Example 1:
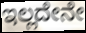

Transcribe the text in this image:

ಇಲ್ಲದೇನೇ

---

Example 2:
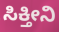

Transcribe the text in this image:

ಸಿಕ್ತೀನಿ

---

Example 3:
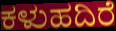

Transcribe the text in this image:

ಕಳುಹದಿರೆ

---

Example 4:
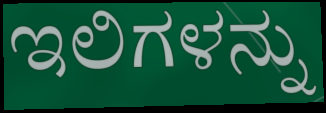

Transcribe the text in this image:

ಇಲಿಗಳನ್ನು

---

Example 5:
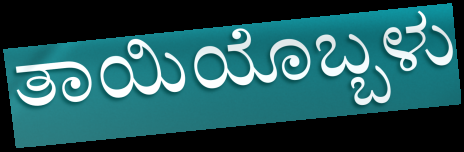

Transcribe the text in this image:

ತಾಯಿಯೊಬ್ಬಳು